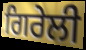
ਗਿਰੇਲੀ